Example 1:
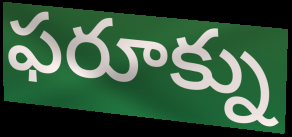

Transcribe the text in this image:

ఫరూక్ను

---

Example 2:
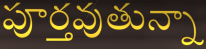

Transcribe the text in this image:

పూర్తవుతున్నా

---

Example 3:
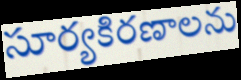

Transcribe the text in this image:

సూర్యకిరణాలను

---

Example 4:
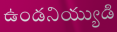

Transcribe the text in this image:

ఉండనియ్యుడి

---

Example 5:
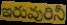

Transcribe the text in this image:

ఇరువురినీ